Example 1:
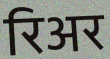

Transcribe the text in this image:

रिअर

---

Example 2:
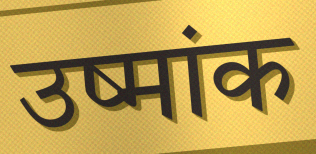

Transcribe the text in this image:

उष्मांक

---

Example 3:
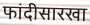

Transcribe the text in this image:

फांदीसारखा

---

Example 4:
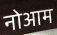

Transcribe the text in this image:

नोआम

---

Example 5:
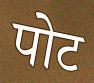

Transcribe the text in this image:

पोट